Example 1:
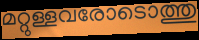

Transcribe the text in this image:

മറ്റുള്ളവരോടൊത്തു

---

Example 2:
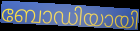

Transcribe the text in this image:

ബോഡിയായി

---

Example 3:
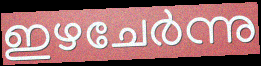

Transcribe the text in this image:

ഇഴചേർന്നു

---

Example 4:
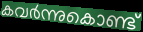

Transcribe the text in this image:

കവർന്നുകൊണ്ട്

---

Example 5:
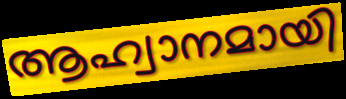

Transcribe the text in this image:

ആഹ്വാനമായി